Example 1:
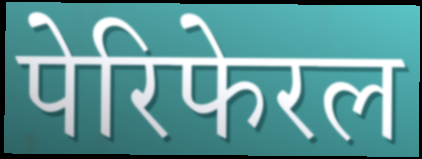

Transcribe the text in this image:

पेरिफेरल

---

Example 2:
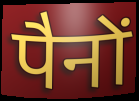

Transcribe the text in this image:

पैनों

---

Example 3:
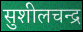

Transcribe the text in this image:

सुशीलचन्द्र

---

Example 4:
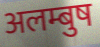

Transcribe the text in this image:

अलम्बुष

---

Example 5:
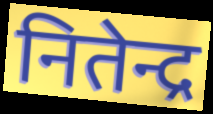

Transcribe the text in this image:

नितेन्द्र